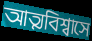
আত্মবিশ্বাসে